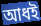
আধই